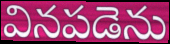
వినపడెను